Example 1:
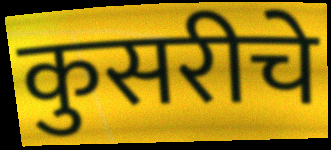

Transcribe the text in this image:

कुसरीचे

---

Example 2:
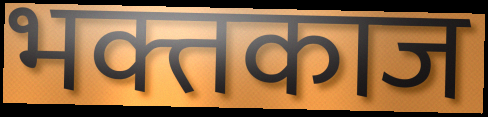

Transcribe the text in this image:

भक्तकाज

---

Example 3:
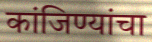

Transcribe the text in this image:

कांजिण्यांचा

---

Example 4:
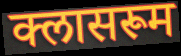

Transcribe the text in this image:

क्लासरूम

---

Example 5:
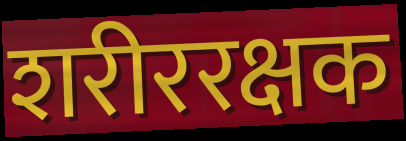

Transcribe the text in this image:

शरीररक्षक